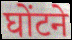
घोंटने